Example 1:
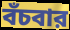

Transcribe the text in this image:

বঁচবার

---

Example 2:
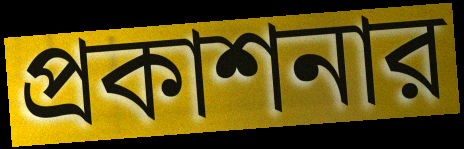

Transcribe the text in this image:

প্রকাশনার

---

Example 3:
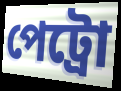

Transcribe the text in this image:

পেট্রো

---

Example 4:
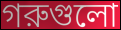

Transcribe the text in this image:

গরুগুলো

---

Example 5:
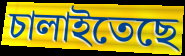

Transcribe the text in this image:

চালাইতেছে